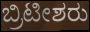
ಬ್ರಿಟೀಶರು